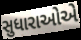
સુધારાઓએ